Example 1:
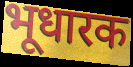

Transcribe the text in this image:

भूधारक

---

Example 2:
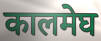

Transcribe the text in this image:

कालमेघ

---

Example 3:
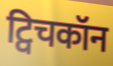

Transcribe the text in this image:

ट्विचकॉन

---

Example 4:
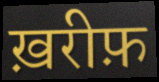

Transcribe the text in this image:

ख़रीफ़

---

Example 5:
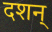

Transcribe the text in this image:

दशन्